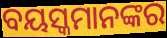
ବୟସ୍କମାନଙ୍କର